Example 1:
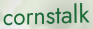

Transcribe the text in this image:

cornstalk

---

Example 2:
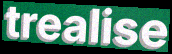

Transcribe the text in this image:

trealise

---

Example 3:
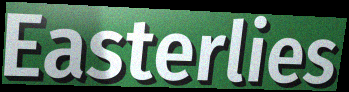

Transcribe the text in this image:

Easterlies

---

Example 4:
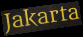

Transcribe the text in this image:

Jakarta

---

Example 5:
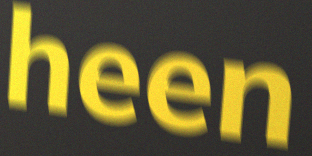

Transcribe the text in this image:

heen